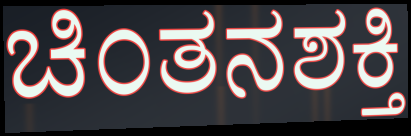
ಚಿಂತನಶಕ್ತಿ